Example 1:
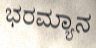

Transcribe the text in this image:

ಭರಮ್ಯಾನ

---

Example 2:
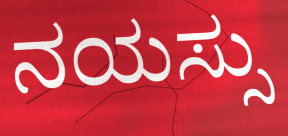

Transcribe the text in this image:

ನಯಸ್ಸು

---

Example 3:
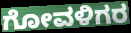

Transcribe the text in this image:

ಗೋವಳಿಗರ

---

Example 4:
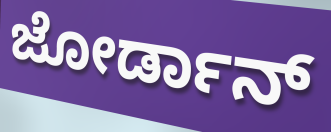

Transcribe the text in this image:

ಜೋರ್ಡಾನ್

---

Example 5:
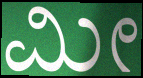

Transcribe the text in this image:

ಮೀ